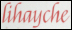
lihayche